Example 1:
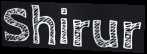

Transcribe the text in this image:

Shirur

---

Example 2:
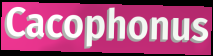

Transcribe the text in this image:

Cacophonus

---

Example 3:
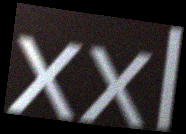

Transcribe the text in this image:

xxl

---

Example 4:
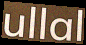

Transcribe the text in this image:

ullal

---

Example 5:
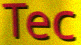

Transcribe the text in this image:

Tec